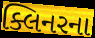
ક્લિનરના